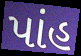
પાંહ